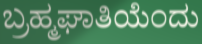
ಬ್ರಹ್ಮಘಾತಿಯೆಂದು